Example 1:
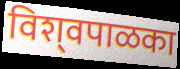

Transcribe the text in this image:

विश्वपाळका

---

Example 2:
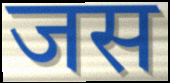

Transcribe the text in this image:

जस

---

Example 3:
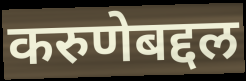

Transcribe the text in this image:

करुणेबद्दल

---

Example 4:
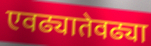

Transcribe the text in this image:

एवढ्यातेवढ्या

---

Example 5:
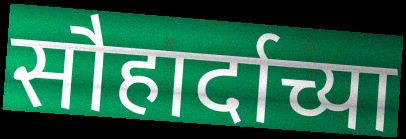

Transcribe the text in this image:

सौहार्दाच्या